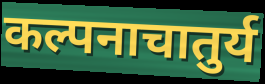
कल्पनाचातुर्य